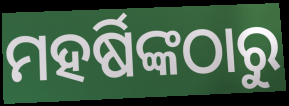
ମହର୍ଷିଙ୍କଠାରୁ